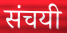
संचयी